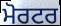
ਮੋਰਟਰ